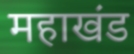
महाखंड